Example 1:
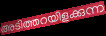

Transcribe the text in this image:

അടിത്തറയിളക്കുന്ന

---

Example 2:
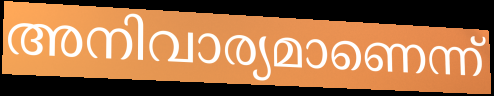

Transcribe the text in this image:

അനിവാര്യമാണെന്ന്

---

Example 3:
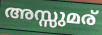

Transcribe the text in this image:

അസ്സുമര്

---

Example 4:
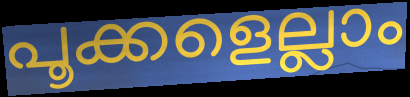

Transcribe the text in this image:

പൂക്കളെല്ലാം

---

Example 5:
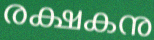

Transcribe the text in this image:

രക്ഷകനു